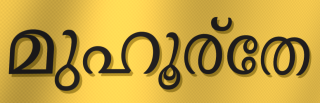
മുഹൂര്തേ